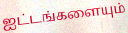
ஐட்டங்களையும்